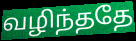
வழிந்ததே